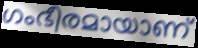
ഗംഭീരമായാണ്